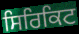
ਸਿਰਿਕਿਟ